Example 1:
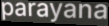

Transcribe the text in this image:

parayana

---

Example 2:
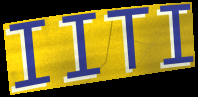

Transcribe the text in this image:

IITI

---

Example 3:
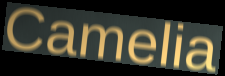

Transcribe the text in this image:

Camelia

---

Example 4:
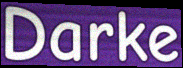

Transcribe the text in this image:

Darke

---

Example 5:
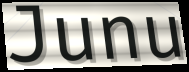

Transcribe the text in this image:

Junu